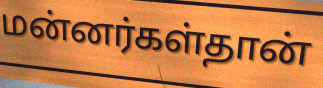
மன்னர்கள்தான்